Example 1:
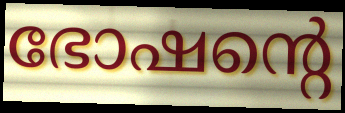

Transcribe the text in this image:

ഭോഷന്റെ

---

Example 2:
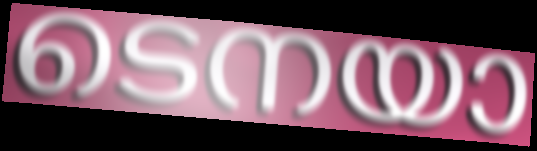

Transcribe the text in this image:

ടെനയാ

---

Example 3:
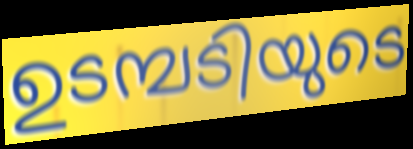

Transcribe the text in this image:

ഉടമ്പടിയുടെ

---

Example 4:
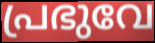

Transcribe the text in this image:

പ്രഭുവേ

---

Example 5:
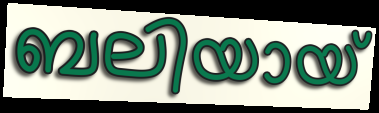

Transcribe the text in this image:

ബലിയായ്